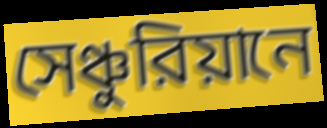
সেঞ্চুরিয়ানে